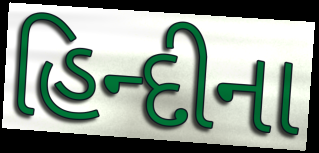
હિન્દીના